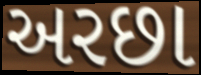
અરછા